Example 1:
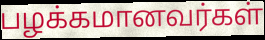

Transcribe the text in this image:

பழக்கமானவர்கள்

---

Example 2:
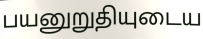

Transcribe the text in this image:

பயனுறுதியுடைய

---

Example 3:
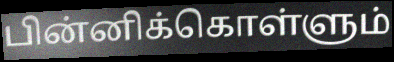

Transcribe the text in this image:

பின்னிக்கொள்ளும்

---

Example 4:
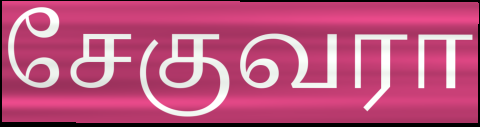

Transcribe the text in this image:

சேகுவரா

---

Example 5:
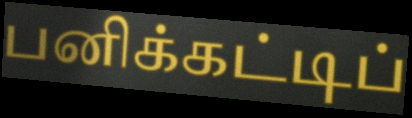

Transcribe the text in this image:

பனிக்கட்டிப்